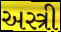
અસ્ત્રી